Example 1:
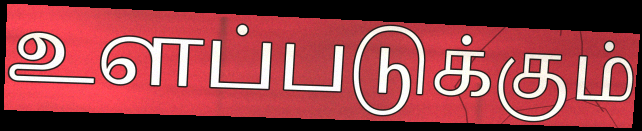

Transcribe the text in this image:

உளப்படுக்கும்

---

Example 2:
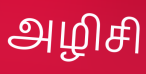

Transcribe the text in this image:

அழிசி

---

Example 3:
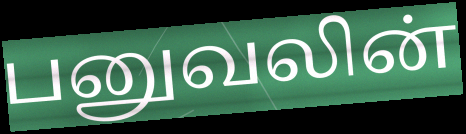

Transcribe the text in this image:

பனுவலின்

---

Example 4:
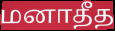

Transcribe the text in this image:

மனாதீத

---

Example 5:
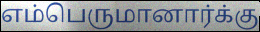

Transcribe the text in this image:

எம்பெருமானார்க்கு